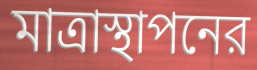
মাত্রাস্থাপনের